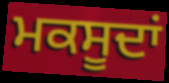
ਮਕਸੂਦਾਂ